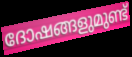
ദോഷങ്ങളുമുണ്ട്